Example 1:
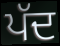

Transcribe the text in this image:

ਪੱਦ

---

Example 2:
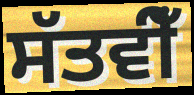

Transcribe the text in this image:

ਸੱਤਵੀਁ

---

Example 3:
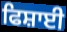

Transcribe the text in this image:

ਫਿਸ਼ਾਈ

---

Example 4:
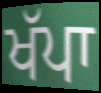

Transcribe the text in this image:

ਖੱਪਾ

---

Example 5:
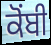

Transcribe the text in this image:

ਕੋਂਬੀ